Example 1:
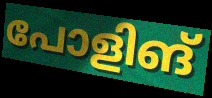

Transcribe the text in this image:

പോളിങ്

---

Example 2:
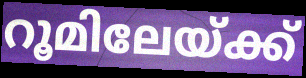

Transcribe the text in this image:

റൂമിലേയ്ക്ക്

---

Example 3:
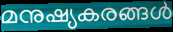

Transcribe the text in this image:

മനുഷ്യകരങ്ങൾ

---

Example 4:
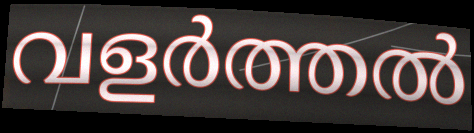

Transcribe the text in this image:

വളർത്തൽ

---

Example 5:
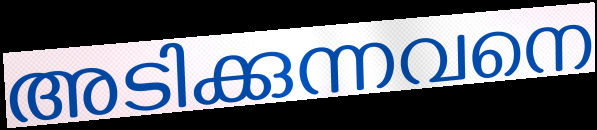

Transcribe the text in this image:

അടിക്കുന്നവനെ